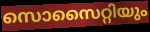
സൊസൈറ്റിയും